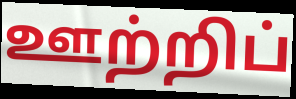
ஊற்றிப்